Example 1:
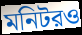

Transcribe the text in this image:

মনিটরও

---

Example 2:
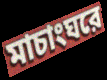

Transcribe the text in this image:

মাচাংঘরে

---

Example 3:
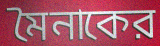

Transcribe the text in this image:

মৈনাকের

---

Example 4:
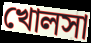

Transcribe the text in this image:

খোলসা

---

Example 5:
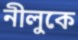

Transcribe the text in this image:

নীলুকে